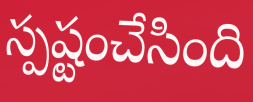
స్పష్టంచేసింది